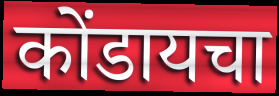
कोंडायचा